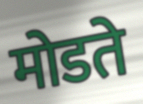
मोडते